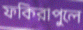
ফকিরাপুলে